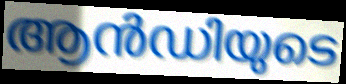
ആൻഡിയുടെ